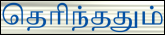
தெரிந்ததும்